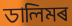
ডালিমৰ